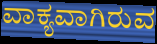
ವಾಕ್ಯವಾಗಿರುವ